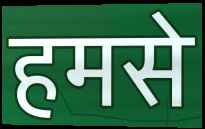
हमसे